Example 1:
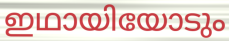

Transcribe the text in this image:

ഇഥായിയോടും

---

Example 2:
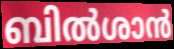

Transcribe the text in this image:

ബിൽശാൻ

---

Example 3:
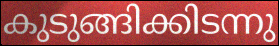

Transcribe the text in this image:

കുടുങ്ങിക്കിടന്നു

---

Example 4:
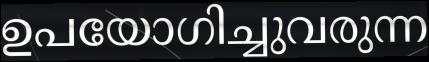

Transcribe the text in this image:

ഉപയോഗിച്ചുവരുന്ന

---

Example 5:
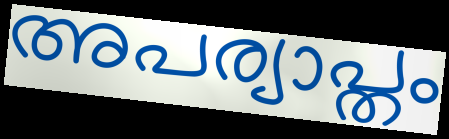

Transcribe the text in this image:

അപര്യാപ്തം